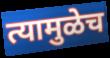
त्यामुळेच